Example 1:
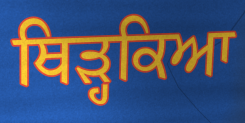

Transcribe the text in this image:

ਥਿੜ੍ਹਕਿਆ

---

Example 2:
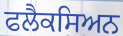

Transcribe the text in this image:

ਫਲੈਕਸਿਅਨ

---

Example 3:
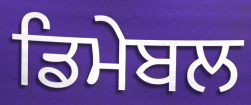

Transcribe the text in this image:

ਡਿਮੇਬਲ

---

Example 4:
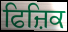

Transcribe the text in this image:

ਫਿਜ਼ਿਕ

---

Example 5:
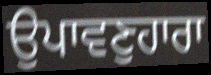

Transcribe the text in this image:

ਉਪਾਵਣੁਹਾਰਾ